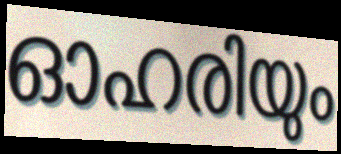
ഓഹരിയും